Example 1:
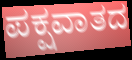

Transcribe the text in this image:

ಪಕ್ಷವಾತದ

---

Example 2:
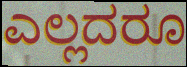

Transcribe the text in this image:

ಎಲ್ಲದರೂ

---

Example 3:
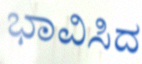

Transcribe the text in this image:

ಭಾವಿಸಿದ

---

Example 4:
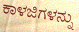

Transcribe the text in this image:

ಕಾಳಜಿಗಳನ್ನು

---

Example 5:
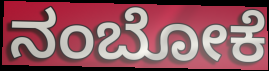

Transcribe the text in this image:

ನಂಬೋಕೆ